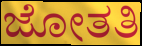
ಜೋತತಿ